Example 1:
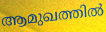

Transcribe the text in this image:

ആമുഖത്തിൽ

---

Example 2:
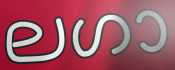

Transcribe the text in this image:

ലഗാ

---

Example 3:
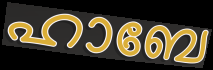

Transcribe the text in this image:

ഹാബേ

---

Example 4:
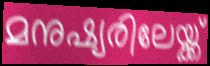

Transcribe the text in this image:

മനുഷ്യരിലേയ്ക്ക്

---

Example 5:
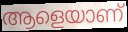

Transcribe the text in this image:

ആളെയാണ്